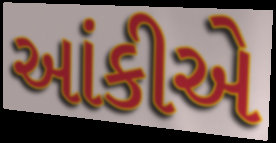
આંકીએ